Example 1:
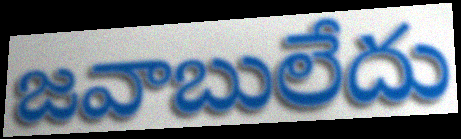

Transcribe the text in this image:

జవాబులేదు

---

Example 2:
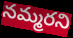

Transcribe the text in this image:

నమ్మరని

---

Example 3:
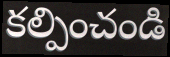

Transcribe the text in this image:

కల్పించండి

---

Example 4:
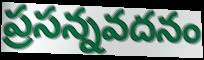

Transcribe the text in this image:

ప్రసన్నవదనం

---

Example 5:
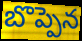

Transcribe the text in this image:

బొప్పెన